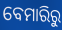
ବେମାରିରୁ